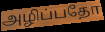
அழிப்பதோ